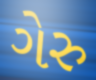
ગેરુ